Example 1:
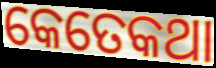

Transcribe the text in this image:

କେତେକଥା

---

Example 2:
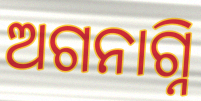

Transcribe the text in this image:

ଅଗନାଗ୍ନି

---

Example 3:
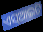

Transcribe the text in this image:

ଏସ୍ଆଇଟି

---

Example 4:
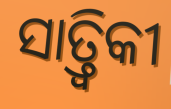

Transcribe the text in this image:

ସାତ୍ତ୍ୱିକୀ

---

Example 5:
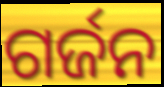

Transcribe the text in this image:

ଗର୍ଜନ